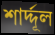
শার্দ্দূল